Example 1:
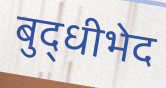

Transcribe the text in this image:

बुद्धीभेद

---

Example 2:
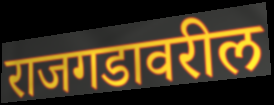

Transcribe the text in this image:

राजगडावरील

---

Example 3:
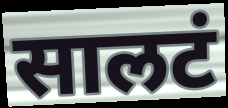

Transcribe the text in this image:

सालटं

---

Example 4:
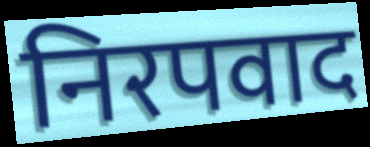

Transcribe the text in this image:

निरपवाद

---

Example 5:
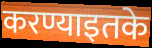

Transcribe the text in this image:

करण्याइतके